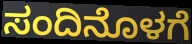
ಸಂದಿನೊಳಗೆ